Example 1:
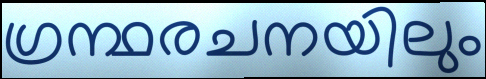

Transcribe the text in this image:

ഗ്രന്ഥരചനയിലും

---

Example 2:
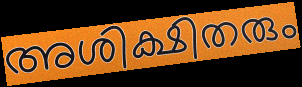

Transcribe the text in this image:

അശിക്ഷിതരും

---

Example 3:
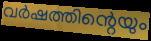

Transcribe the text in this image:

വർഷത്തിന്റെയും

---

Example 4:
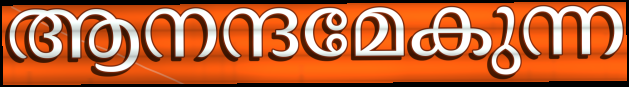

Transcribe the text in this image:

ആനന്ദമേകുന്ന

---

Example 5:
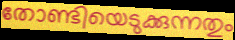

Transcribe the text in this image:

തോണ്ടിയെടുക്കുന്നതും